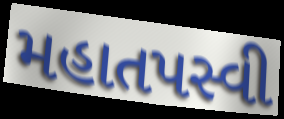
મહાતપસ્વી